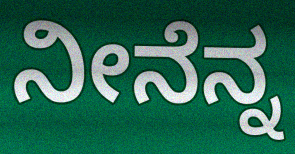
ನೀನೆನ್ನ